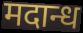
मदान्ध